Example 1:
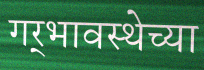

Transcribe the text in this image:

गर्भावस्थेच्या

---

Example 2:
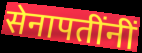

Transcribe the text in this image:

सेनापतींनीं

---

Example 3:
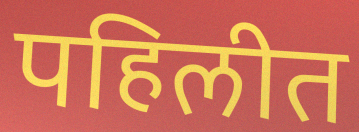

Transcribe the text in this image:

पहिलीत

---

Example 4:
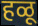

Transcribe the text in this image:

हळू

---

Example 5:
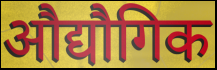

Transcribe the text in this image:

औद्यौगिक